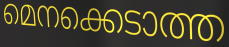
മെനക്കെടാത്ത